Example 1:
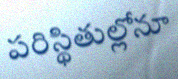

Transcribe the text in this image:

పరిస్థితుల్లోనూ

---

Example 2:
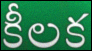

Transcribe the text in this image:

కీలక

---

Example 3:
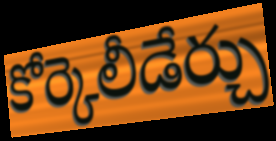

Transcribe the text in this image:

కోర్కెలీడేర్చు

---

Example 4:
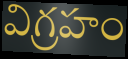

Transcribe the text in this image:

విగ్రహం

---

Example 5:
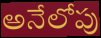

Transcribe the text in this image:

అనేలోపు